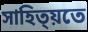
সাহিত্য়তে